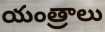
యంత్రాలు